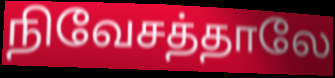
நிவேசத்தாலே